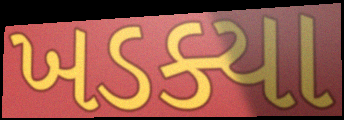
ખડક્યા